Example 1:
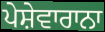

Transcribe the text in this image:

ਪੇਸ਼ੇਵਾਰਾਨਾ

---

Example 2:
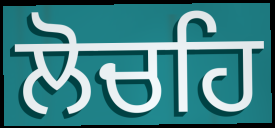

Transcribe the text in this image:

ਲੋਚਹਿ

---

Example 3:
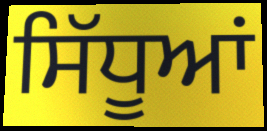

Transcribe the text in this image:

ਸਿੱਧੂਆਂ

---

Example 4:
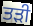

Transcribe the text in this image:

ਤੜੀ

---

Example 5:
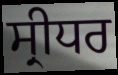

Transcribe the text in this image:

ਸ੍ਰੀਧਰ